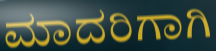
ಮಾದರಿಗಾಗಿ